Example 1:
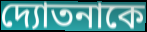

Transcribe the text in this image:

দ্যোতনাকে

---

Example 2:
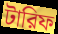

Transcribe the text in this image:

টারিফ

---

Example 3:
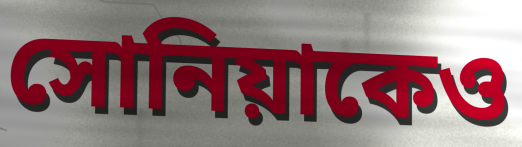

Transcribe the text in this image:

সোনিয়াকেও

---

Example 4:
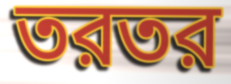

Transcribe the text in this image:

তরতর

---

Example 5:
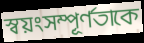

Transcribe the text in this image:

স্বয়ংসম্পূর্ণতাকে